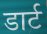
डार्ट